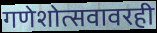
गणेशोत्सवावरही